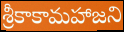
శ్రీకాకామహాజని